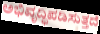
ಅಭಿವೃದ್ಧಿಪಡಿಸುತ್ತದೆ